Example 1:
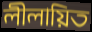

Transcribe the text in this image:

লীলায়িত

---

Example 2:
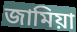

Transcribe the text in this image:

জামিয়া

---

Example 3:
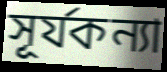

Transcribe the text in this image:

সূর্যকন্যা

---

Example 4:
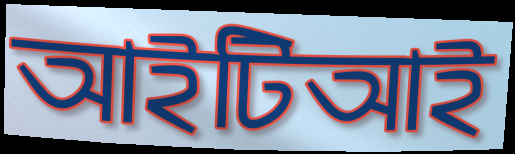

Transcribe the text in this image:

আইটিআই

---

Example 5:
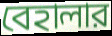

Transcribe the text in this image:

বেহালার